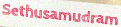
Sethusamudram